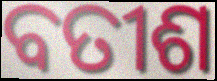
ବତୀଶ